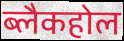
ब्लैकहोल